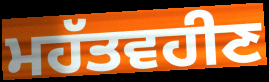
ਮਹੱਤਵਹੀਣ